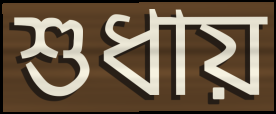
শুধায়